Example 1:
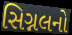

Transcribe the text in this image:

સિગ્નલનો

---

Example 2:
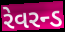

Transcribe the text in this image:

રેવરન્ડ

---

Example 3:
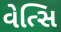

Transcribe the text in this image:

વેત્સિ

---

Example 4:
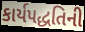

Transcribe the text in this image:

કાર્યપદ્ધતિની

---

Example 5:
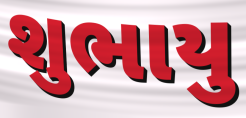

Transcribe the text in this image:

શુભાયુ